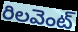
రిలవెంట్